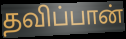
தவிப்பான்